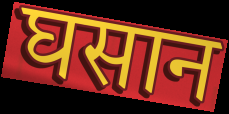
घसान